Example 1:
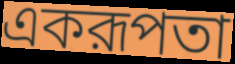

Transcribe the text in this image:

একরূপতা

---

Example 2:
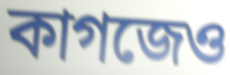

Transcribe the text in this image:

কাগজেও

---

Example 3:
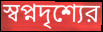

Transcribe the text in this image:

স্বপ্নদৃশ্যের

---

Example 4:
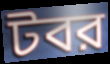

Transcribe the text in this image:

টবর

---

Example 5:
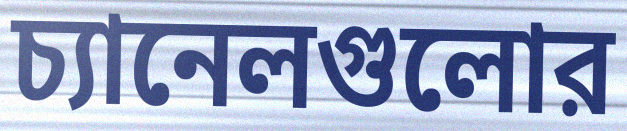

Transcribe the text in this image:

চ্যানেলগুলোর